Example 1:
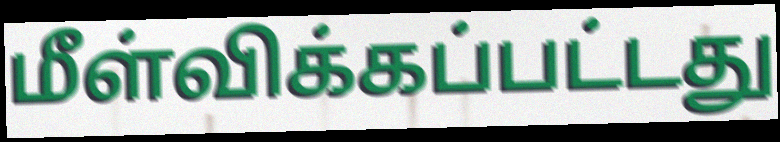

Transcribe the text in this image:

மீள்விக்கப்பட்டது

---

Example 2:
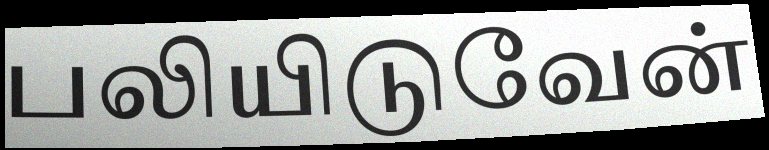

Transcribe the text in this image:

பலியிடுவேன்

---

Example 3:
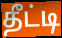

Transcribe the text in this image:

தீட்டி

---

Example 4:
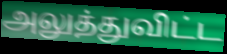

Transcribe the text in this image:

அலுத்துவிட்ட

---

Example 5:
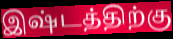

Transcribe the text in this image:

இஷ்டத்திற்கு